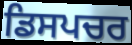
ਡਿਸਪਚਰ